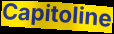
Capitoline